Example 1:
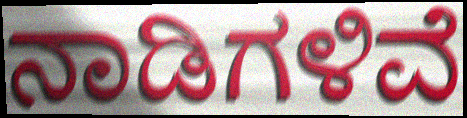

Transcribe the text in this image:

ನಾಡಿಗಳಿವೆ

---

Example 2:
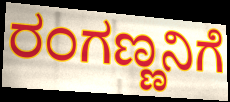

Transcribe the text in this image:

ರಂಗಣ್ಣನಿಗೆ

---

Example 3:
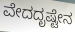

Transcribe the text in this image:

ವೇದದೃಷ್ಟೇನ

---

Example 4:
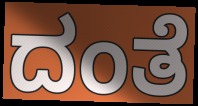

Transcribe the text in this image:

ದಂತೆ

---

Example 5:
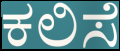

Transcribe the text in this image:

ಕಲಿಸೆ